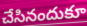
చేసినందుకూ